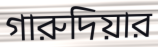
গারুদিয়ার